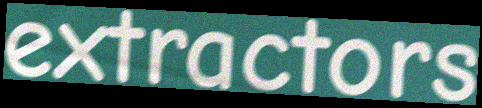
extractors